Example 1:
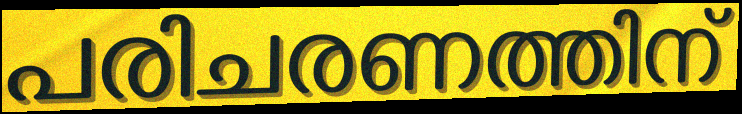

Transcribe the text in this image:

പരിചരണത്തിന്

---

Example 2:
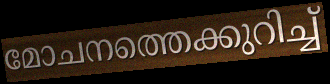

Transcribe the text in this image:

മോചനത്തെക്കുറിച്ച്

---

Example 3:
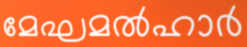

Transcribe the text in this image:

മേഘമൽഹാർ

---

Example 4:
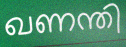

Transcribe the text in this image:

ഖണന്തി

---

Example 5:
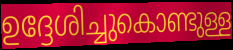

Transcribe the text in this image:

ഉദ്ദേശിച്ചുകൊണ്ടുള്ള